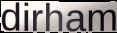
dirham